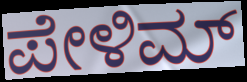
ಪೇಳಿಮ್